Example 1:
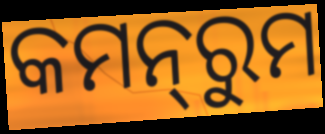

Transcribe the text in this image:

କମନ୍‌ରୁମ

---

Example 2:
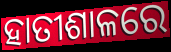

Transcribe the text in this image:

ହାତୀଶାଳରେ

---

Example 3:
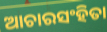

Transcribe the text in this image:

ଆଚାରସଂହିତା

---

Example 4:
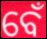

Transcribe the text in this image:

ବେଁ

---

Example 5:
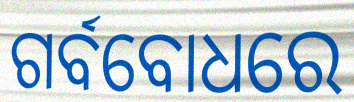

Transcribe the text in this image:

ଗର୍ବବୋଧରେ